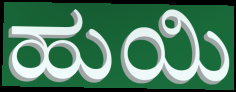
ಹುಯಿ